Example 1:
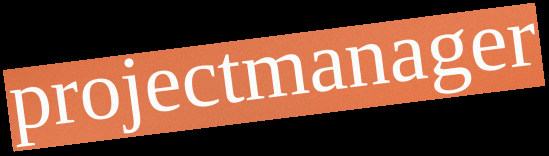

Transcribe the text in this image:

projectmanager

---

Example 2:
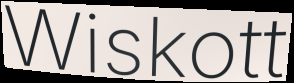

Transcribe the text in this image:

Wiskott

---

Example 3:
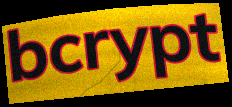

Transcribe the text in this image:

bcrypt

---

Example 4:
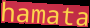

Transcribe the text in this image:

hamata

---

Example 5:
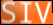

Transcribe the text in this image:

SIV